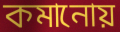
কমানোয়